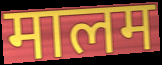
मालम